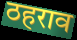
ठहराव